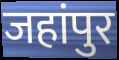
जहांपुर